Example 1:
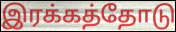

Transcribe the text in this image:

இரக்கத்தோடு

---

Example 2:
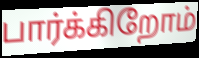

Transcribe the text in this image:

பார்க்கிறோம்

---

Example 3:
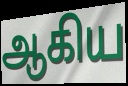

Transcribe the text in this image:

ஆகிய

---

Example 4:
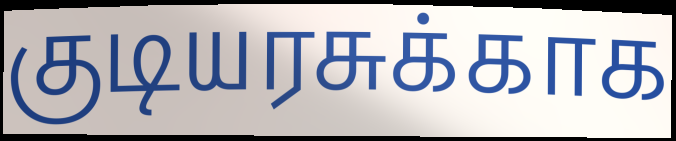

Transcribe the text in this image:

குடியரசுக்காக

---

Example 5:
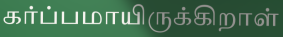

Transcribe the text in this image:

கர்ப்பமாயிருக்கிறாள்